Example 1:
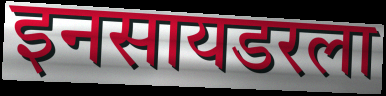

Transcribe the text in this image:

इनसायडरला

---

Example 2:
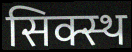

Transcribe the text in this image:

सिक्स्थ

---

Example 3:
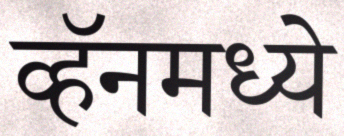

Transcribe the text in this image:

व्हॅनमध्ये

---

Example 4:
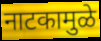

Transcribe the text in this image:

नाटकामुळे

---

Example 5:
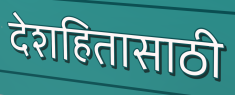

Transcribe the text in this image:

देशहितासाठी